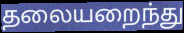
தலையறைந்து